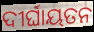
ଦୀର୍ଘାୟତନ